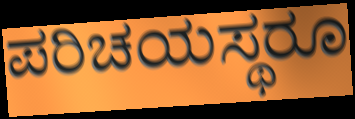
ಪರಿಚಯಸ್ಥರೂ